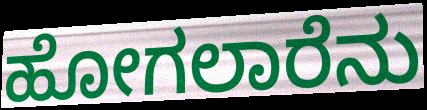
ಹೋಗಲಾರೆನು